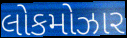
લોકમોઝાર